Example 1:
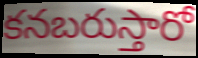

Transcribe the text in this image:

కనబరుస్తారో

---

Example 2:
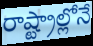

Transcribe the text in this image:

రాష్ట్రాల్లోనే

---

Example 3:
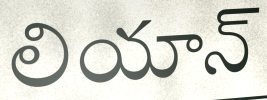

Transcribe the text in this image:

లియాన్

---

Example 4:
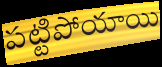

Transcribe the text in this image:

పట్టిపోయాయి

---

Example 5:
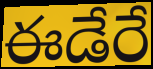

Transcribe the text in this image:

ఈడేరే